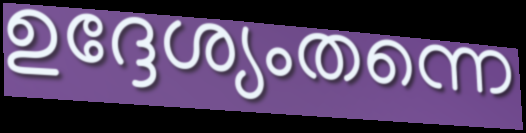
ഉദ്ദേശ്യംതന്നെ